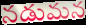
నడుమన